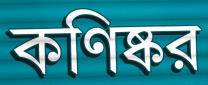
কণিষ্কর